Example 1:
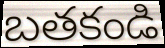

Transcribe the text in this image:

బతకండి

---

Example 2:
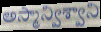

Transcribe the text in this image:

అస్మాన్విశ్వాని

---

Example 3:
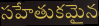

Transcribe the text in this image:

సహేతుకమైన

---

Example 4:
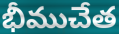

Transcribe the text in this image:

భీముచేత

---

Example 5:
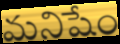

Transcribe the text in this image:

మనిషేం